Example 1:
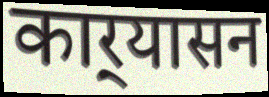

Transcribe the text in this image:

कार्यासन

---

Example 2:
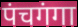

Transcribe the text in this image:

पंचगंगा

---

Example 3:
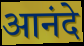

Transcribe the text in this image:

आनंदे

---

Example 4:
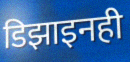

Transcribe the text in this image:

डिझाइनही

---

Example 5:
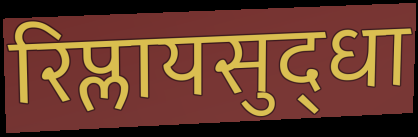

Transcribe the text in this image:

रिप्लायसुद्धा